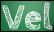
Vel